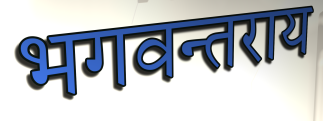
भगवन्तराय